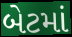
બેટમાં